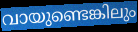
വായുണ്ടെങ്കിലും